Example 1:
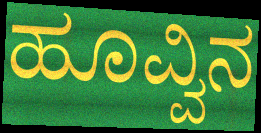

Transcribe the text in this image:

ಹೂವ್ವಿನ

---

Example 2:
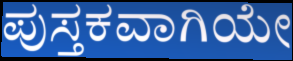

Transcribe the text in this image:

ಪುಸ್ತಕವಾಗಿಯೇ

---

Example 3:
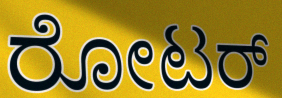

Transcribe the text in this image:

ರೋಟರ್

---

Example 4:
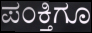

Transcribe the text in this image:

ಪಂಕ್ತಿಗೂ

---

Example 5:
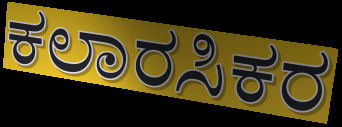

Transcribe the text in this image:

ಕಲಾರಸಿಕರ